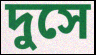
দুসে